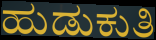
ಹುಡುಕುತಿ